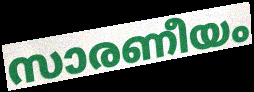
സാരണീയം